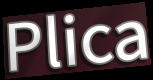
Plica